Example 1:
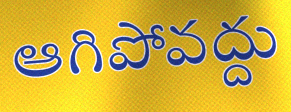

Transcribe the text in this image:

ఆగిపోవద్దు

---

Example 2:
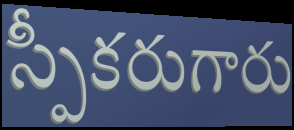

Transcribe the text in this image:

స్పీకరుగారు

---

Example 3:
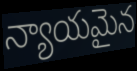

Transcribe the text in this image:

న్యాయమైన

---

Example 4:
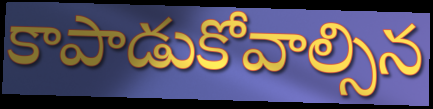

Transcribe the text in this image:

కాపాడుకోవాల్సిన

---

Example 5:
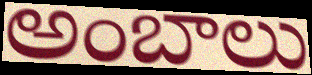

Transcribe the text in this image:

అంబాలు